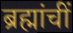
ब्रह्मांचीं